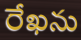
రేఖను